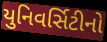
યુનિવર્સિટીનો